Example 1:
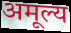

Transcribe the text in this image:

अमूल्य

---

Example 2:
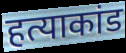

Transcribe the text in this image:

हत्याकांड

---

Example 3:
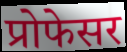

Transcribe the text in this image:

प्रोफेसर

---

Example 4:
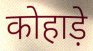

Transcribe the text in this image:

कोहाड़े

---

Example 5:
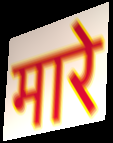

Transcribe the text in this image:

मारे